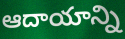
ఆదాయాన్ని